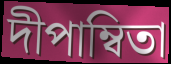
দীপাম্বিতা